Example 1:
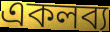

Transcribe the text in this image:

একলব্য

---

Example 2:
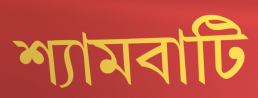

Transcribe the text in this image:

শ্যামবাটি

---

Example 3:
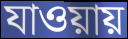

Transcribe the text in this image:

যাওয়ায়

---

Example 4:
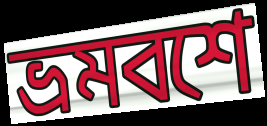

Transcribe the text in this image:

ভ্রমবশে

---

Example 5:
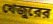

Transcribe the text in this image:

খেজুরের